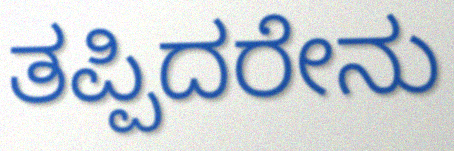
ತಪ್ಪಿದರೇನು